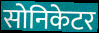
सोनिकेटर